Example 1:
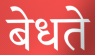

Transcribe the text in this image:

बेधते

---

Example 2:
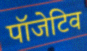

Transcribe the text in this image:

पॉजेटिव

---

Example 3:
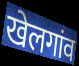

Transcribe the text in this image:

खेलगांव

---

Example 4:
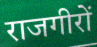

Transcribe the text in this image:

राजगीरों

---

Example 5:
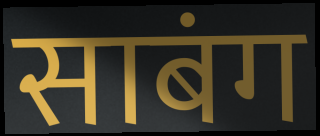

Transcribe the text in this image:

साबंग